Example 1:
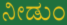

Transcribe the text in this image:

ನೀಡುಂ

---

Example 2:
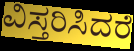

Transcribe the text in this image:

ವಿಸ್ತರಿಸಿದರೆ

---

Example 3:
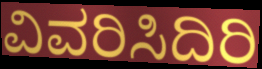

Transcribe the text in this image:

ವಿವರಿಸಿದಿರಿ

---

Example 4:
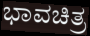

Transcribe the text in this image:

ಭಾವಚಿತ್ರ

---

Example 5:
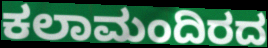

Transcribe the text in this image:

ಕಲಾಮಂದಿರದ